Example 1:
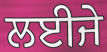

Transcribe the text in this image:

ਲਈਜੇ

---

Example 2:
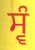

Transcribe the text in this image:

ਸ੍ਵੰ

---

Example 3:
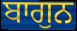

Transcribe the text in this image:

ਬਾਗੁਨ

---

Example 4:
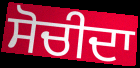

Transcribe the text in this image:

ਸੋਚੀਦਾ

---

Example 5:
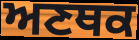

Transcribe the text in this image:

ਅਣਥਕ